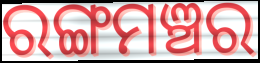
ରଙ୍ଗମଞ୍ଚର